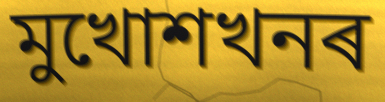
মুখোশখনৰ